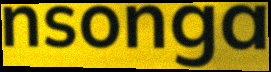
nsonga